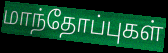
மாந்தோப்புகள்